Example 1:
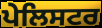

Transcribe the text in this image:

ਪੇਲਿਸਟਰ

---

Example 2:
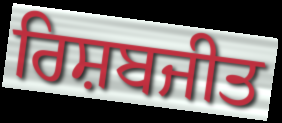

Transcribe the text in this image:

ਰਿਸ਼ਬਜੀਤ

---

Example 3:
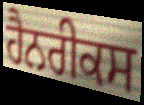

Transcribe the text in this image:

ਹੈਨਰੀਕਸ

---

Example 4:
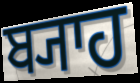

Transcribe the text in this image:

ਬ੍ਯਾਹ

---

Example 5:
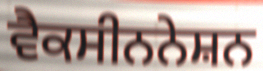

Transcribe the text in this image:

ਵੈਕਸੀਨਨੇਸ਼ਨ